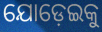
ଯୋଡ଼େଇକୁ